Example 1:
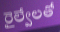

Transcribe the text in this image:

రైల్వేలతో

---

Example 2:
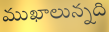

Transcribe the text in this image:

ముఖాలున్నది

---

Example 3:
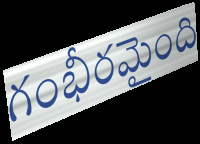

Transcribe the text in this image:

గంభీరమైంది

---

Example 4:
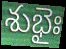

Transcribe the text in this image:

శుభైః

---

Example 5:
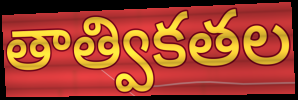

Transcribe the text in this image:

తాత్వికతల